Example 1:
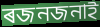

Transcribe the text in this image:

ৰজনজনাই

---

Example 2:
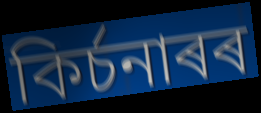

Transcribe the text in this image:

কিৰ্চনাৰৰ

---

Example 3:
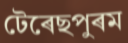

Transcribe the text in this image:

টেৰেছপুৰম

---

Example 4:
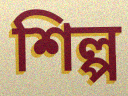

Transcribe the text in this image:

শিল্প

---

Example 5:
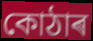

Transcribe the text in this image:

কোঠাৰ